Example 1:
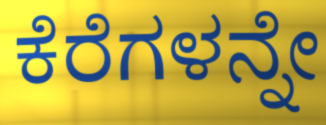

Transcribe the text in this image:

ಕೆರೆಗಳನ್ನೇ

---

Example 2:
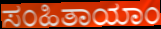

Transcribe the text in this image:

ಸಂಹಿತಾಯಾಂ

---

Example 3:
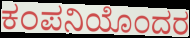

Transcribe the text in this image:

ಕಂಪನಿಯೊಂದರ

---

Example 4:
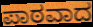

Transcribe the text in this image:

ಪಾಠವಾದ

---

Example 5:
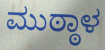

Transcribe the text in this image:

ಮುಠ್ಠಾಳ